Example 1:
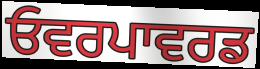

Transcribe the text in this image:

ਓਵਰਪਾਵਰਡ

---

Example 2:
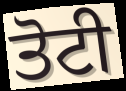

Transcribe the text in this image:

ਤੋਟੀ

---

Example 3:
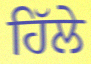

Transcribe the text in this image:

ਹਿੱਲੇ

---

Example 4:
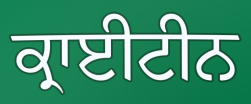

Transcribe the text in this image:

ਕ੍ਰਾਈਟੀਨ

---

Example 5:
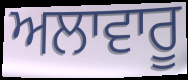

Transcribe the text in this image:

ਅਲਾਵਾਰੂ